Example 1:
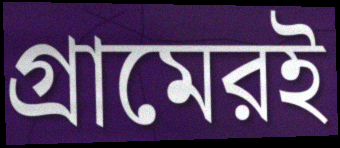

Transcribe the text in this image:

গ্রামেরই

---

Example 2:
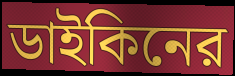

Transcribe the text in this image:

ডাইকিনের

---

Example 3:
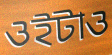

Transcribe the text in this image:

ওইটাও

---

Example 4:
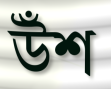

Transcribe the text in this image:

উঁশ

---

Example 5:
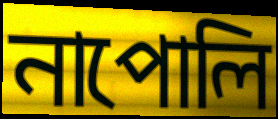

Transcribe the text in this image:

নাপোলি